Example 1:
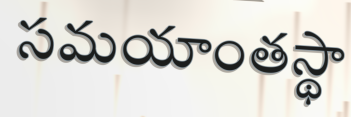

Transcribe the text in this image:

సమయాంతస్థా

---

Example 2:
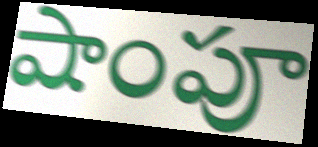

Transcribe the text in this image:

షాంపూ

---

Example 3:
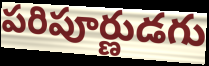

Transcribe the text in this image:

పరిపూర్ణుడగు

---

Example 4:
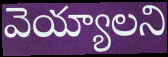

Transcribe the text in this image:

వెయ్యాలని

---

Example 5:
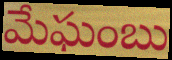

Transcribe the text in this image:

మేఘంబు